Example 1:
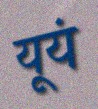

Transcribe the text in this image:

यूयं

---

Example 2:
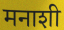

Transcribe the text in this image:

मनाशी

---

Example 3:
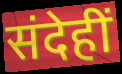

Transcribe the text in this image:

संदेहीं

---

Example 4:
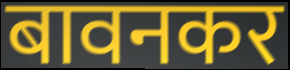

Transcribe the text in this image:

बावनकर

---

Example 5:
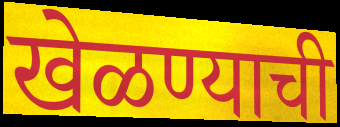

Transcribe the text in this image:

खेळण्याची